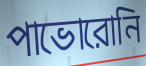
পাভোরোনি